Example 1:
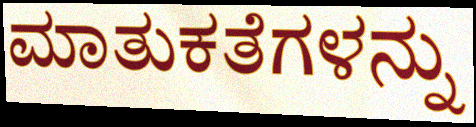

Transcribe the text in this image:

ಮಾತುಕತೆಗಳನ್ನು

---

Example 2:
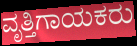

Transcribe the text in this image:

ವೃತ್ತಿಗಾಯಕರು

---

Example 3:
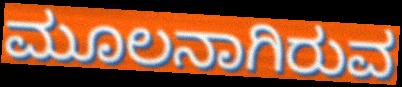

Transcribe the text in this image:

ಮೂಲನಾಗಿರುವ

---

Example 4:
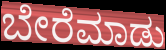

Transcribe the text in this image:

ಬೇರೆಮಾಡು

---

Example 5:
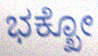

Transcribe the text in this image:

ಭಕ್ಖೋ